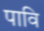
पावि